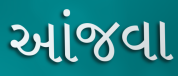
આંજવા